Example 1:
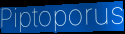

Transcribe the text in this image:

Piptoporus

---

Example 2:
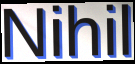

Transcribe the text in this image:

Nihil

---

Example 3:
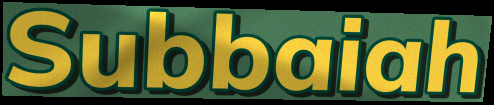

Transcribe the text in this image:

Subbaiah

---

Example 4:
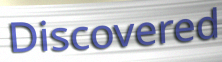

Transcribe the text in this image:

Discovered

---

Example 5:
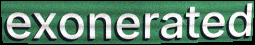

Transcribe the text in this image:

exonerated